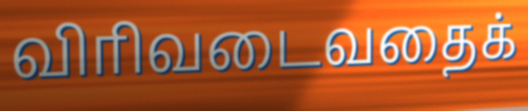
விரிவடைவதைக்